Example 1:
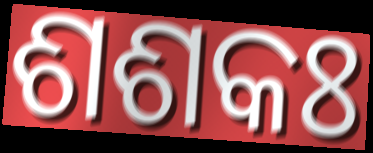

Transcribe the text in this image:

ଶଶକଃ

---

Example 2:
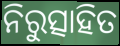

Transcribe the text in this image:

ନିରୁତ୍ସାହିତ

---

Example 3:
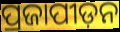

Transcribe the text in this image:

ପ୍ରଜାପୀଡ଼ନ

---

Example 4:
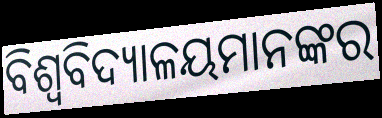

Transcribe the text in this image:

ବିଶ୍ଵବିଦ୍ୟାଳୟମାନଙ୍କର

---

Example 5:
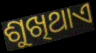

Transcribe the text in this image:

ଶୁଖିଥାଏ